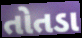
તોતડા